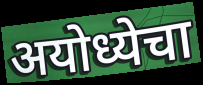
अयोध्येचा